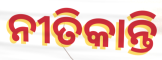
ନୀତିକାନ୍ତି